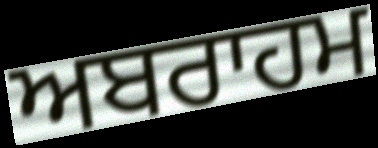
ਅਬਰਾਹਮ